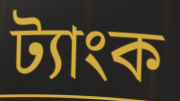
ট্যাংক